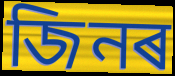
জিনৰ